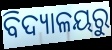
ବିଦ୍ୟାଳୟରୁ